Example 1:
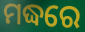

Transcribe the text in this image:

ମଦ୍ଧରେ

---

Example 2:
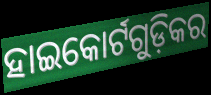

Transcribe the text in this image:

ହାଇକୋର୍ଟଗୁଡ଼ିକର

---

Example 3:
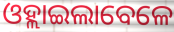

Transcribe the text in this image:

ଓହ୍ଲାଇଲାବେଳେ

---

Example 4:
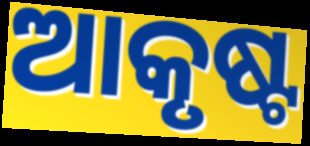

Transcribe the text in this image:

ଆକୃଷ୍ଟ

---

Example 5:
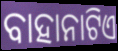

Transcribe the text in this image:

ବାହାନାଟିଏ